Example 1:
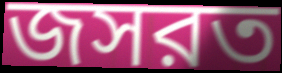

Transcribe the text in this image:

জসরত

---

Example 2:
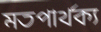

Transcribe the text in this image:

মতপার্থক্য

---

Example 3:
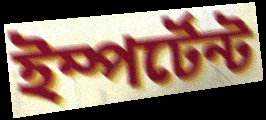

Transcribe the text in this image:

ইম্পর্টেন্ট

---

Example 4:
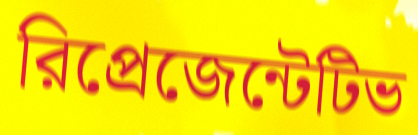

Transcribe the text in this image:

রিপ্রেজেন্টেটিভ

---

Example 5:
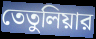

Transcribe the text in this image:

তেতুলিয়ার